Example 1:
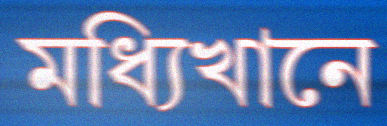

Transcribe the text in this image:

মধ্যিখানে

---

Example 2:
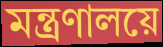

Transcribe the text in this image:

মন্ত্রণালয়ে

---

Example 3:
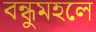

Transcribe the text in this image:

বন্ধুমহলে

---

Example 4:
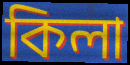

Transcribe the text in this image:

কিলা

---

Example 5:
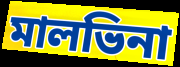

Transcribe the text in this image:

মালভিনা